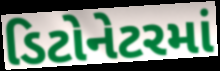
ડિટોનેટરમાં